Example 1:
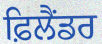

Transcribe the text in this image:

ਫ਼ਿਲੈਂਡਰ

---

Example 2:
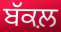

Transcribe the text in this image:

ਬੱਕਲ਼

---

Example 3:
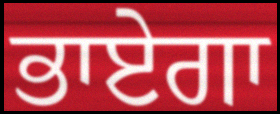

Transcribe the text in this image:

ਭਾਏਗਾ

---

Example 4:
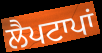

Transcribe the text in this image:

ਲੈਪਟਾਪਾਂ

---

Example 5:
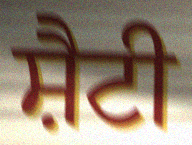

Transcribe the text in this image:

ਸ਼ੈਟੀ